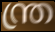
ന്ത്ര